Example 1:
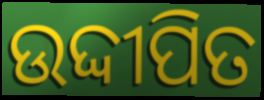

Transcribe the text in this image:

ଉଦ୍ଦୀପିତ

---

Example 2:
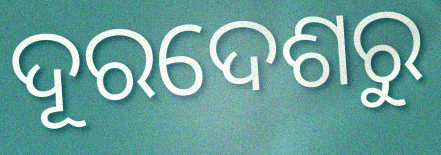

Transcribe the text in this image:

ଦୂରଦେଶରୁ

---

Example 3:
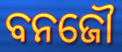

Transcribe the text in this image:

ବନଜୌ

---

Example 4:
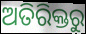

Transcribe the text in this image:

ଅତିରିକ୍ତରୁ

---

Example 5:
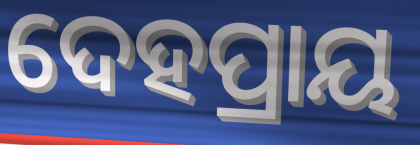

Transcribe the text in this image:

ଦେହପ୍ରାୟ